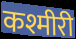
कश्मीरी